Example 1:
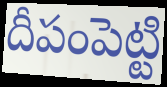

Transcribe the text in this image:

దీపంపెట్టి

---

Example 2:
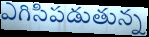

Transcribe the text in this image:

ఎగిసిపడుతున్న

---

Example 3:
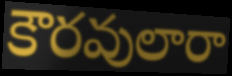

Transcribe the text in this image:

కౌరవులారా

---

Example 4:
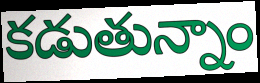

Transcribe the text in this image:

కడుతున్నాం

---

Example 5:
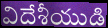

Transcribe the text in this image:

విదేశీయుడి